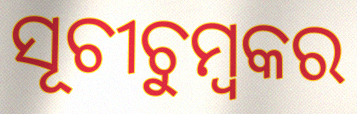
ସୂଚୀଚୁମ୍ବକର